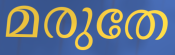
മരുതേ